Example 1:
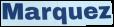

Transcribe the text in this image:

Marquez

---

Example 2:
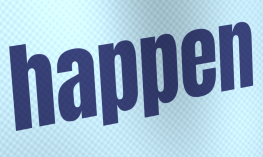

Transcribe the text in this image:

happen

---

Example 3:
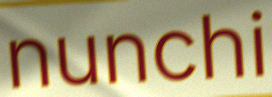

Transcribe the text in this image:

nunchi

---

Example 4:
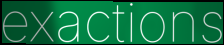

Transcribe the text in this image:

exactions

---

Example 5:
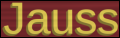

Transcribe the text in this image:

Jauss